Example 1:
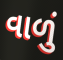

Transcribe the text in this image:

વાળું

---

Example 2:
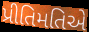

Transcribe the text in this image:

પ્રીતિમતિએ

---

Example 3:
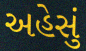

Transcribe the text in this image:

અહેસું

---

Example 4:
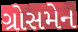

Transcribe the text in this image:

ગ્રોસમેન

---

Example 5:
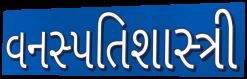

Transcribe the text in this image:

વનસ્પતિશાસ્ત્રી